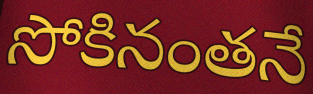
సోకినంతనే